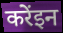
करेंइन